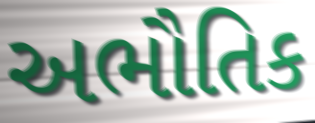
અભૌતિક